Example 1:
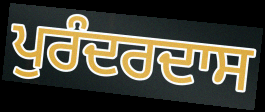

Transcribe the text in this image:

ਪੁਰੰਦਰਦਾਸ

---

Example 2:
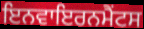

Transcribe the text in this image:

ਇਨਵਾਇਰਨਮੈਂਟਸ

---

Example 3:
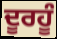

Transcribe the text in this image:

ਦੂਰਹੂੰ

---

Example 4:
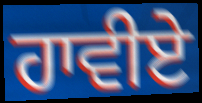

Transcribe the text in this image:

ਹਾਵੀਏ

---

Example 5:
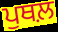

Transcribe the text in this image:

ਪੁਥਲ਼